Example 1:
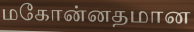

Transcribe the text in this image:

மகோன்னதமான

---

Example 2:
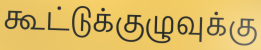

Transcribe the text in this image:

கூட்டுக்குழுவுக்கு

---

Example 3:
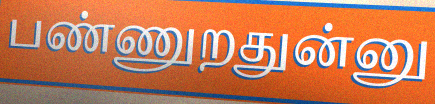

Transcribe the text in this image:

பண்ணுறதுன்னு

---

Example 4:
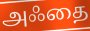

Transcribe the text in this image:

அஃதை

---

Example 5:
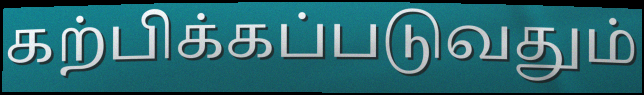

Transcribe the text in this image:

கற்பிக்கப்படுவதும்